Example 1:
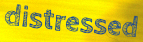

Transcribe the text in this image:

distressed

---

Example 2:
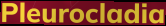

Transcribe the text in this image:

Pleurocladia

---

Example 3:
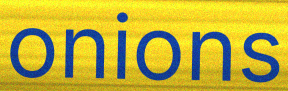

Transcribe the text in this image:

onions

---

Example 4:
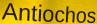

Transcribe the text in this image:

Antiochos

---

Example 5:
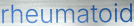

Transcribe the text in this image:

rheumatoid